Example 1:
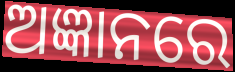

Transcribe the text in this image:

ଅଜ୍ଞାନରେ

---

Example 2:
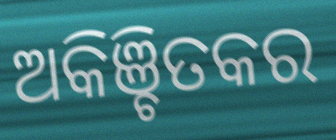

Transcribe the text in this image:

ଅକିଞ୍ଚିତକର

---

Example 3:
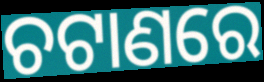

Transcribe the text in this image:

ଚଟାଣରେ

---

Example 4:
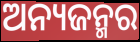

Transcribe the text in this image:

ଅନ୍ୟଜନ୍ମର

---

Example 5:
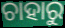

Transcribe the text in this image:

ଚାହାରୁ